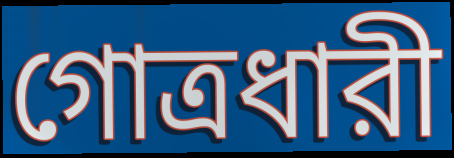
গোত্রধারী